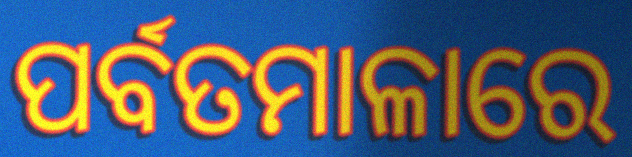
ପର୍ବତମାଳାରେ